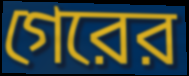
গেরের